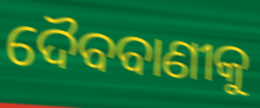
ଦୈବବାଣୀକୁ